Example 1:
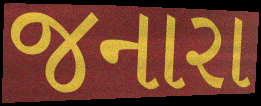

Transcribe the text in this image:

જનારા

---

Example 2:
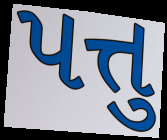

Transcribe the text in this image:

પત્તુ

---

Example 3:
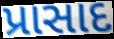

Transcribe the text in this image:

પ્રાસાદ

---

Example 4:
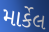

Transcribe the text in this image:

માર્કેલ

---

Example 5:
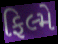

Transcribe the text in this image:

ફિલ્મે